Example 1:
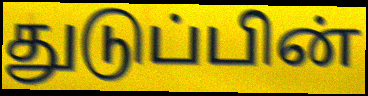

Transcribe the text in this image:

துடுப்பின்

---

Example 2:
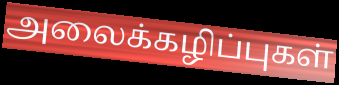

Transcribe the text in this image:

அலைக்கழிப்புகள்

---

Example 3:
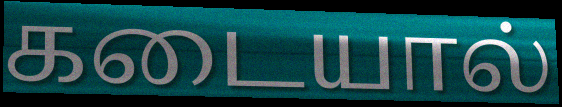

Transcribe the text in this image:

கடையால்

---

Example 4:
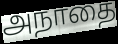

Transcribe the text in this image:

அநாதை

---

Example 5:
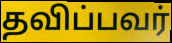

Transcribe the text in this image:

தவிப்பவர்